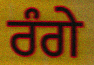
ਰੰਗੇ